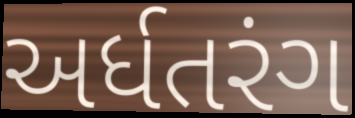
અર્ધતરંગ